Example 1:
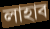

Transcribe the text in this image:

লাহাব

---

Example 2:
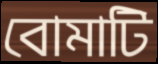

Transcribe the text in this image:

বোমাটি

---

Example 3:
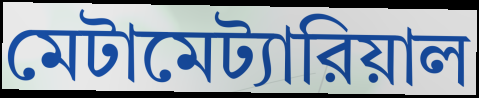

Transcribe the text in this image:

মেটামেট্যারিয়াল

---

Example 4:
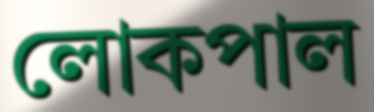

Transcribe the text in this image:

লোকপাল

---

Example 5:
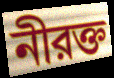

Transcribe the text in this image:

নীরক্ত